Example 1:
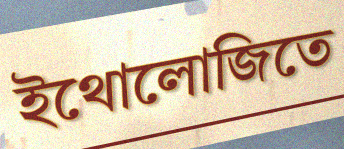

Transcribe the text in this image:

ইথোলোজিতে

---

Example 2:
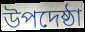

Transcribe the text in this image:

উপদেষ্ঠা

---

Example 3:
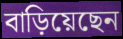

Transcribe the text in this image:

বাড়িয়েছেন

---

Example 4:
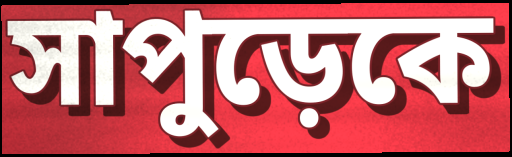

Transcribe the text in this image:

সাপুড়েকে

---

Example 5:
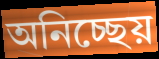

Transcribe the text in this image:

অনিচ্ছেয়